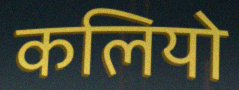
कलियो